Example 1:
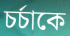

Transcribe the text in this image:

চর্চাকে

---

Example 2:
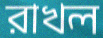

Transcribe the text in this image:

রাখল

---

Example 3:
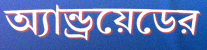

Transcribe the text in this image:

অ্যান্ড্রয়েডের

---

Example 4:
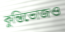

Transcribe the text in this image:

কুন্তিভোজও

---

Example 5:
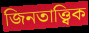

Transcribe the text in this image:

জিনতাত্ত্বিক